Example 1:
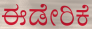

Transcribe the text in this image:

ಈಡೇರಿಕೆ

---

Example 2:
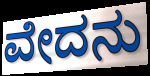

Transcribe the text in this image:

ವೇದನು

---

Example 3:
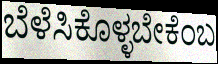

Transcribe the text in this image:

ಬೆಳೆಸಿಕೊಳ್ಳಬೇಕೆಂಬ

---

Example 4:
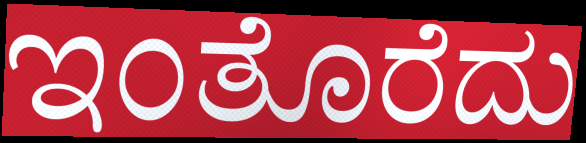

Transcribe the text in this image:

ಇಂತೊರೆದು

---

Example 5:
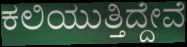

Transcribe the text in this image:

ಕಲಿಯುತ್ತಿದ್ದೇವೆ